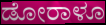
ಡೋರಾಳೂ